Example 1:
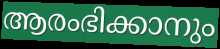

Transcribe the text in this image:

ആരംഭിക്കാനും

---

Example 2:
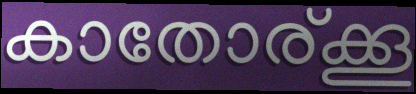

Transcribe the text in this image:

കാതോര്ക്കൂ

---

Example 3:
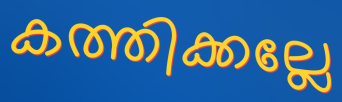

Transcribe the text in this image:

കത്തിക്കല്ലേ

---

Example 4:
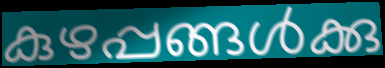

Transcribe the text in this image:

കുഴപ്പങ്ങൾക്കു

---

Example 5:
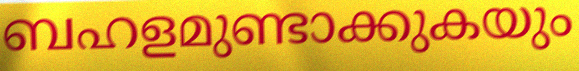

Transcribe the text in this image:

ബഹളമുണ്ടാക്കുകയും